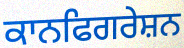
ਕਾਨਫਿਗਰੇਸ਼ਨ